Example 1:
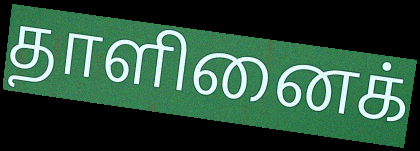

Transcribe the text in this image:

தாளினைக்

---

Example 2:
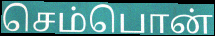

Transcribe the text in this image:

செம்பொன்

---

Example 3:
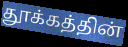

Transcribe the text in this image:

தூக்கத்தின்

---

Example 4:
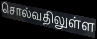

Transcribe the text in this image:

சொல்வதிலுள்ள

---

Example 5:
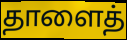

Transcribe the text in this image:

தாளைத்